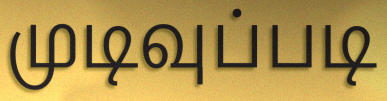
முடிவுப்படி